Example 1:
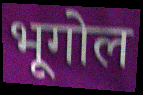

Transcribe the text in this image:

भूगोल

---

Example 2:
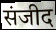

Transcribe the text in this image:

संजीद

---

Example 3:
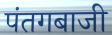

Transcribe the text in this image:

पंतगबाजी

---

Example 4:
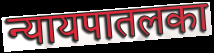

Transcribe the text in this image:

न्यायपातलका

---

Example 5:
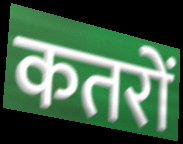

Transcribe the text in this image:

कतरों